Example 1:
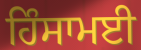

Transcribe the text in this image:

ਹਿੰਸਾਮਈ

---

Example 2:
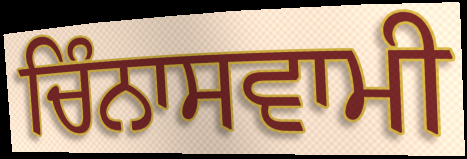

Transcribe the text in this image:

ਚਿੰਨਾਸਵਾਮੀ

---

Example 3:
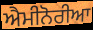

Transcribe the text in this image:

ਐਮੀਨੋਰੀਆ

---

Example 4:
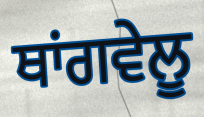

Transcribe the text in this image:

ਥਾਂਗਵੇਲੂ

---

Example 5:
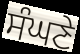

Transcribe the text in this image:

ਸੰਘਣੇ